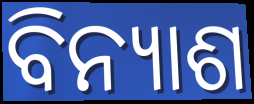
ବିନ୍ୟାଶ